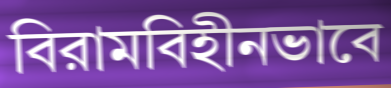
বিরামবিহীনভাবে